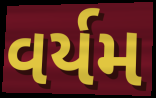
વર્યમ